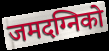
जमदग्निको